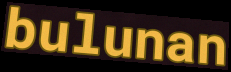
bulunan